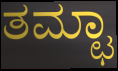
ತಮ್ಟಾ